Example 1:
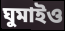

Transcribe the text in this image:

ঘুমাইও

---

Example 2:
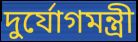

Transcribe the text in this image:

দুর্যোগমন্ত্রী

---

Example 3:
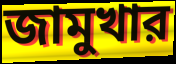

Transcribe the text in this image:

জামুখার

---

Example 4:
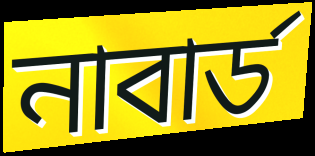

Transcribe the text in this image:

নাবার্ড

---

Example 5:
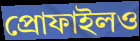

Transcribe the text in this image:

প্রোফাইলও